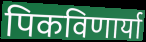
पिकविणार्या